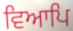
ਵਿਆਪਿ